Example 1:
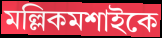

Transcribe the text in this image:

মল্লিকমশাইকে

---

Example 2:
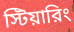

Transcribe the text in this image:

স্টিয়ারিং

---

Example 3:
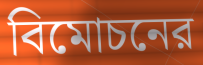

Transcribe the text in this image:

বিমোচনের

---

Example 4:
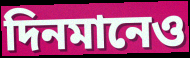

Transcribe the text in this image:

দিনমানেও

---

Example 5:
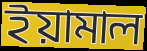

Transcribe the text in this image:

ইয়ামাল